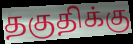
தகுதிக்கு